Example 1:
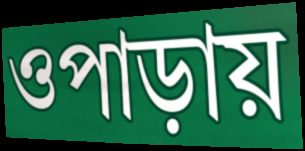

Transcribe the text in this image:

ওপাড়ায়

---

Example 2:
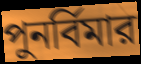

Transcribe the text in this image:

পুনর্বিমার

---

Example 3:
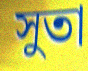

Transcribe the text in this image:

সুতা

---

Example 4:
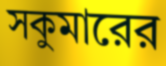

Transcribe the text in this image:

সকুমারের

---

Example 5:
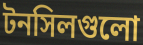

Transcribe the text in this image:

টনসিলগুলো